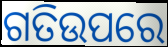
ଗତିଉପରେ